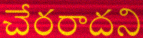
చేరరాదని